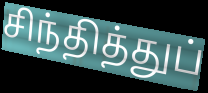
சிந்தித்துப்